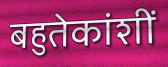
बहुतेकांशीं